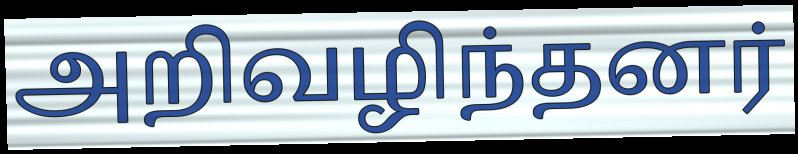
அறிவழிந்தனர்